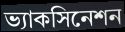
ভ্যাকসিনেশন